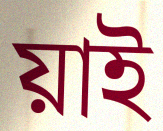
য়াই